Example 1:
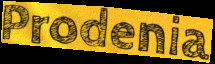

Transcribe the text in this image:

Prodenia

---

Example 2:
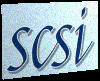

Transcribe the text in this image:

scsi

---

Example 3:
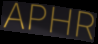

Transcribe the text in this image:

APHR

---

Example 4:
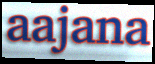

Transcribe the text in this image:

aajana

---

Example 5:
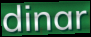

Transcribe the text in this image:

dinar